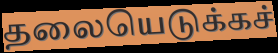
தலையெடுக்கச்